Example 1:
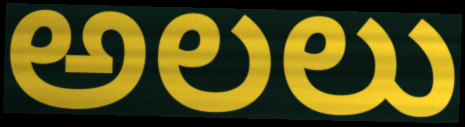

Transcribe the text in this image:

అలలు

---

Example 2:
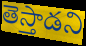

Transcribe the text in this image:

తెస్తాడని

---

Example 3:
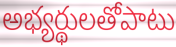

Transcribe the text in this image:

అభ్యర్థులతోపాటు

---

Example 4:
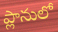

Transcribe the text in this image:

ప్లానులో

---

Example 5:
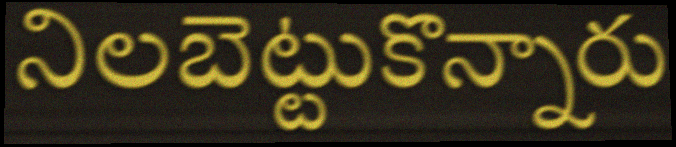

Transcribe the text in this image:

నిలబెట్టుకొన్నారు